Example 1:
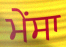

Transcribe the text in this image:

ਮੇਂਸਾ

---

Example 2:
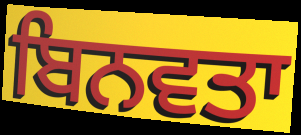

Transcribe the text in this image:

ਬਿਨਵਤਾ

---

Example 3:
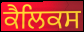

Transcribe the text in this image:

ਕੈਲਿਕਸ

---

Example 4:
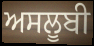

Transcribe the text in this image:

ਅਸਲੂਬੀ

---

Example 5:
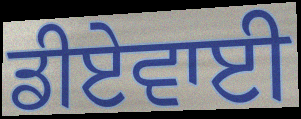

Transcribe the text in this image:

ਡੀਏਵਾਈ